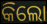
କିଲୋ